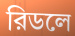
রিডলে